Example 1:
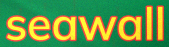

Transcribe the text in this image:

seawall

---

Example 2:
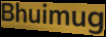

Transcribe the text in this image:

Bhuimug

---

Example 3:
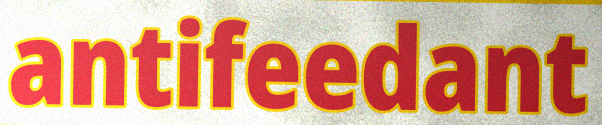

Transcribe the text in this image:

antifeedant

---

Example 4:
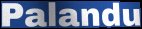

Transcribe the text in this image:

Palandu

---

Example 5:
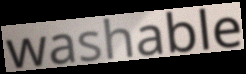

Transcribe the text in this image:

washable